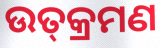
ଉତ୍‍କ୍ରମଣ